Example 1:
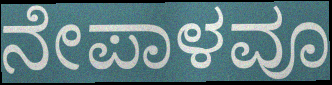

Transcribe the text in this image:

ನೇಪಾಳವೂ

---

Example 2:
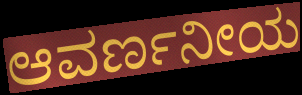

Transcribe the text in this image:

ಆವರ್ಣನೀಯ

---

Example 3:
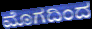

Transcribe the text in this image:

ಮೊಗದಿಂದ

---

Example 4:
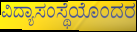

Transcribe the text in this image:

ವಿದ್ಯಾಸಂಸ್ಥೆಯೊಂದರ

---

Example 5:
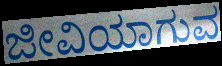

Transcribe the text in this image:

ಜೀವಿಯಾಗುವ